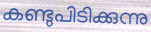
കണ്ടുപിടിക്കുന്നു